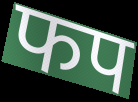
फप